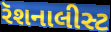
રૅશનાલીસ્ટ